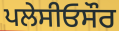
ਪਲੇਸੀਓਸੌਰ